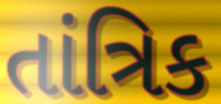
તાંત્રિક